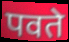
पवते